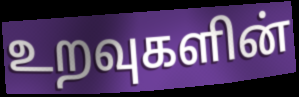
உறவுகளின்